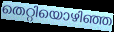
തെറ്റിയൊഴിഞ്ഞ